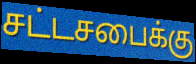
சட்டசபைக்கு